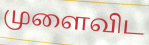
முளைவிட